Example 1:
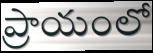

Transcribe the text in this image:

ప్రాయంలో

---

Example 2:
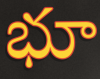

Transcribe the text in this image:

భూ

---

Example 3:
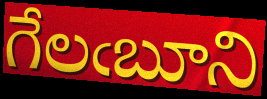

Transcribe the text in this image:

గేలఁబూని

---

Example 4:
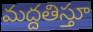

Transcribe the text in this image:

మద్దతిస్తూ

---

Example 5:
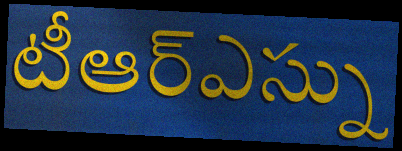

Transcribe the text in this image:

టీఆర్ఎస్ను